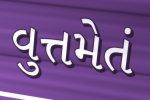
વુત્તમેતં